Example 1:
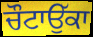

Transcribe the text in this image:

ਚੌਟਾਉੱਕਾ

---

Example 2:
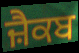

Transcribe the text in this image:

ਜ਼ੈਕਬ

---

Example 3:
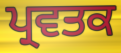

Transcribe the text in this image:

ਪ੍ਰਵਤਕ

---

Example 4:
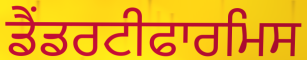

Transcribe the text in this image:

ਡੈਂਡਰਟੀਫਾਰਮਿਸ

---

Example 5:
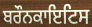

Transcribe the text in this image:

ਬਰੌਨਕਾਇਟਿਸ